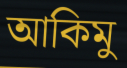
আকিমু